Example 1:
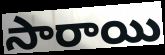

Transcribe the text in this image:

సారాయి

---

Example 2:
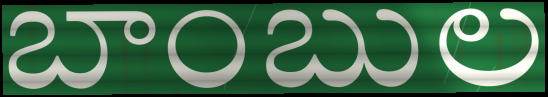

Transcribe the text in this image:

బాంబుల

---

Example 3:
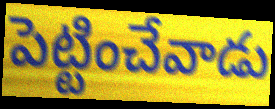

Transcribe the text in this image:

పెట్టించేవాడు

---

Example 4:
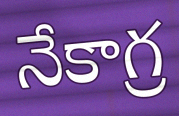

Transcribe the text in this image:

నేకాగ్ర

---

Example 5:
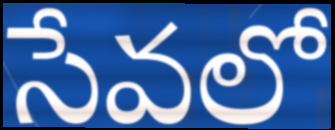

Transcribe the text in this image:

సేవలో